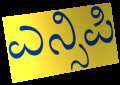
ಎನ್ಸಿಪಿ